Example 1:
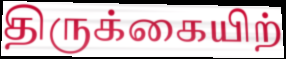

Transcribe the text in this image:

திருக்கையிற்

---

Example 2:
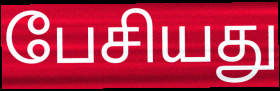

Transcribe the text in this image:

பேசியது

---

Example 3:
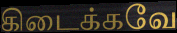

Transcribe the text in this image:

கிடைக்கவே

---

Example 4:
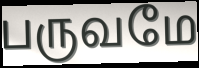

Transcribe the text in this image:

பருவமே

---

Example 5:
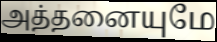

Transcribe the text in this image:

அத்தனையுமே